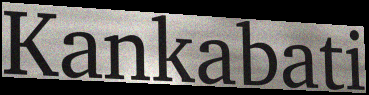
Kankabati